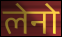
लेनो